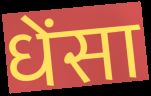
धेंसा